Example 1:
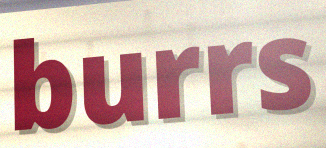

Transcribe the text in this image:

burrs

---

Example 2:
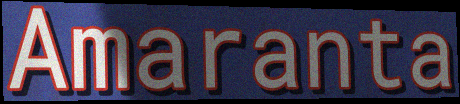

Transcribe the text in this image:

Amaranta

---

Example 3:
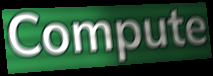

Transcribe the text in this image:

Compute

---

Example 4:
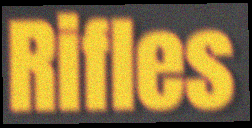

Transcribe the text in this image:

Rifles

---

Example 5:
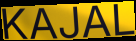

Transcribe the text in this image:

KAJAL